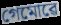
গেমোৱে